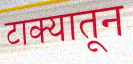
टाक्यातून